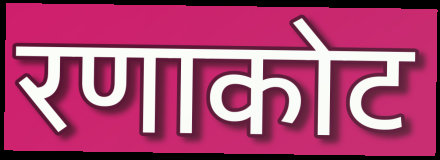
रणाकोट